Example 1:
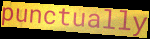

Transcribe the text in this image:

punctually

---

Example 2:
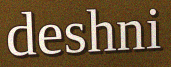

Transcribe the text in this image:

deshni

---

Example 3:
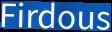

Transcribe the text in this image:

Firdous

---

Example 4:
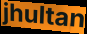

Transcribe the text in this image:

jhultan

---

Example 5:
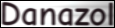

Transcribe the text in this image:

Danazol